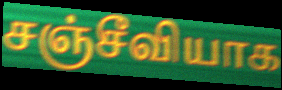
சஞ்சீவியாக